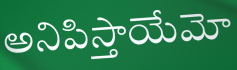
అనిపిస్తాయేమో